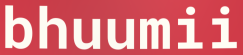
bhuumii